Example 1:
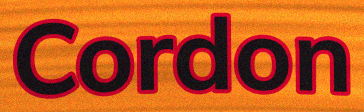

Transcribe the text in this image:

Cordon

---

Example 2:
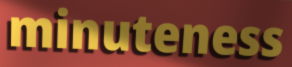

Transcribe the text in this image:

minuteness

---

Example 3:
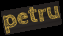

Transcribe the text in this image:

petru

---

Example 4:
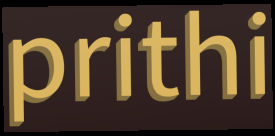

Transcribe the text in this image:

prithi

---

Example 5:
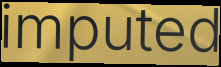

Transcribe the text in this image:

imputed